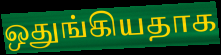
ஒதுங்கியதாக